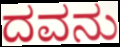
ದವನು